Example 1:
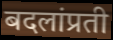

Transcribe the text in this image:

बदलांप्रती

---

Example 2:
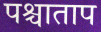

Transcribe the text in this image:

पश्चाताप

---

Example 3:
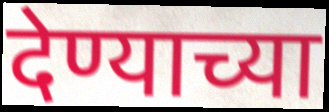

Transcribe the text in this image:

देण्याच्या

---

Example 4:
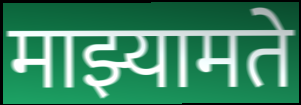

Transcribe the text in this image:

माझ्यामते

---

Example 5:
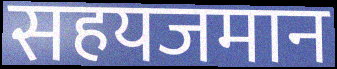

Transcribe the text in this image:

सहयजमान